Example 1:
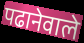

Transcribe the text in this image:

पढानेवाले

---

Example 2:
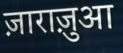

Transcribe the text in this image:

ज़ाराज़ुआ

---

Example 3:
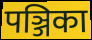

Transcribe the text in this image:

पञ्जिका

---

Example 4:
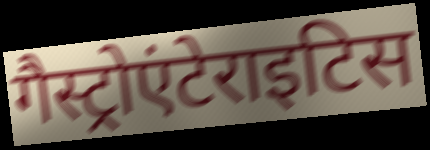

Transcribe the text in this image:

गैस्ट्रोएंटेराइटिस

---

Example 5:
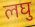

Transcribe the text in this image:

लघु